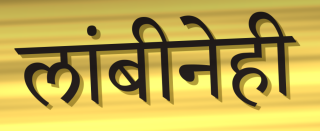
लांबीनेही